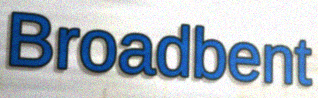
Broadbent